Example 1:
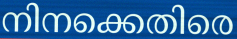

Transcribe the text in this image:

നിനക്കെതിരെ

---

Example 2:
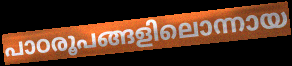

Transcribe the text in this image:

പാഠരൂപങ്ങളിലൊന്നായ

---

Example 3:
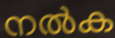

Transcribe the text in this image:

നൽക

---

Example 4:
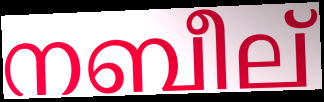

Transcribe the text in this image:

നബീല്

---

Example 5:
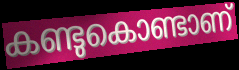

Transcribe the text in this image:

കണ്ടുകൊണ്ടാണ്